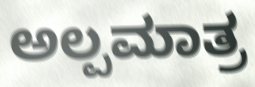
ಅಲ್ಪಮಾತ್ರ